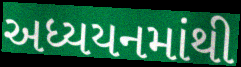
અધ્યયનમાંથી